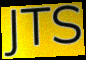
JTS